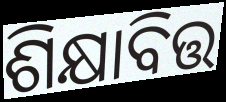
ଶିକ୍ଷାବିତ୍ତ